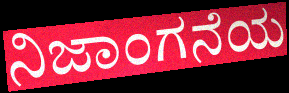
ನಿಜಾಂಗನೆಯ